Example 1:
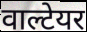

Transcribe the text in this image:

वाल्टेयर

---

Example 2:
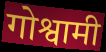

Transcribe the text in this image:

गोश्वामी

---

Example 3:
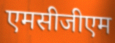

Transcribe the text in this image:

एमसीजीएम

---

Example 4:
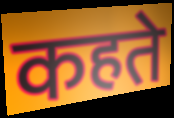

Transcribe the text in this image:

कहते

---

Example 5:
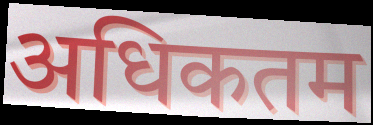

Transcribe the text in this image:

अधिकतम